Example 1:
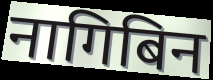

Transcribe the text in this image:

नागिबिन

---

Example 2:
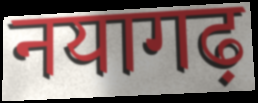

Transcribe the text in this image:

नयागढ़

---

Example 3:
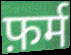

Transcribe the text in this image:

फ़र्म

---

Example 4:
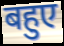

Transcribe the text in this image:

बहुए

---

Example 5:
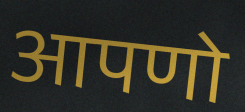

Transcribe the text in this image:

आपणो